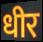
धीर